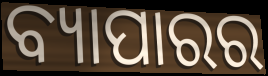
ବ୍ୟାପାରର